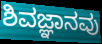
ಶಿವಜ್ಞಾನವು